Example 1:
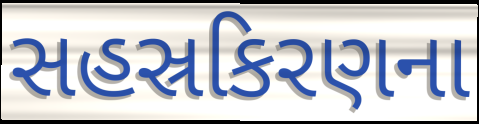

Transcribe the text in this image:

સહસ્રકિરણના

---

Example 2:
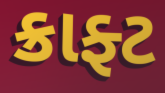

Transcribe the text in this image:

ક્રાફ્ટ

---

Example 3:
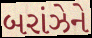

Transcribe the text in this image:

બરાંઝેને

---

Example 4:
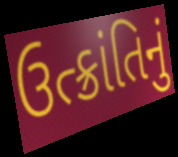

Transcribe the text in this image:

ઉત્ક્રાંતિનું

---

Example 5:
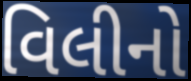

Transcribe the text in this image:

વિલીનો